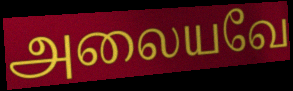
அலையவே